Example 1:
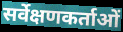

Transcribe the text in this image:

सर्वेक्षणकर्ताओं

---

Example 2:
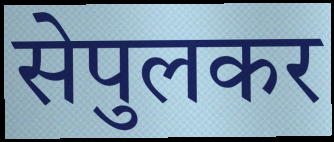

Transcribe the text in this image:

सेपुलकर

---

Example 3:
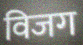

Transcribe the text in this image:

विजग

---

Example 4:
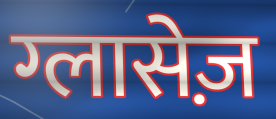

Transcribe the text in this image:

ग्लासेज़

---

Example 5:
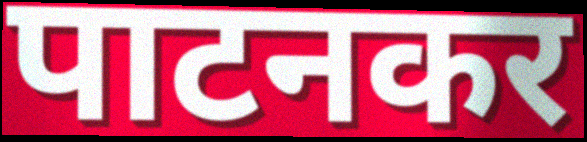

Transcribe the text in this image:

पाटनकर